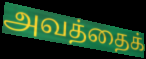
அவத்தைக்